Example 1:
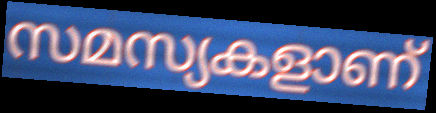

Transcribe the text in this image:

സമസ്യകളാണ്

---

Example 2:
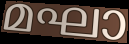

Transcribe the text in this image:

മഘാ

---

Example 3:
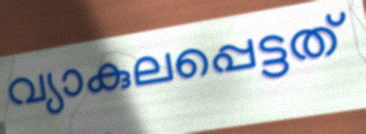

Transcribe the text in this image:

വ്യാകുലപ്പെട്ടത്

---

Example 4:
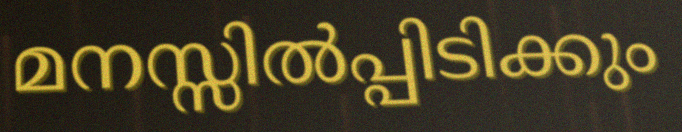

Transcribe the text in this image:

മനസ്സിൽപ്പിടിക്കും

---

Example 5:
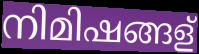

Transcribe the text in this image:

നിമിഷങ്ങള്